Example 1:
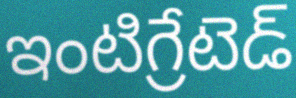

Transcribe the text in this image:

ఇంటిగ్రేటెడ్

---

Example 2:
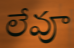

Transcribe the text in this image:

లేవూ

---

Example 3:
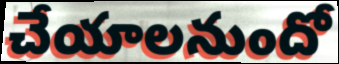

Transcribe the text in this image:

చేయాలనుందో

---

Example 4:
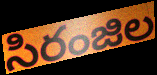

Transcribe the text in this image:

సిరంజిల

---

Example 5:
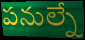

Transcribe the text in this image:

పనుల్నే